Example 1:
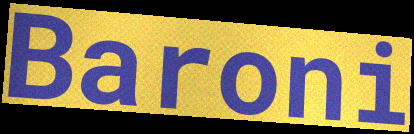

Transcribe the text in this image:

Baroni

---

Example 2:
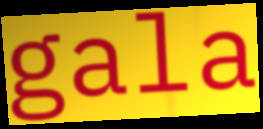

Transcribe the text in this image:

gala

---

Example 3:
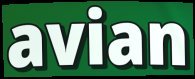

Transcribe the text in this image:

avian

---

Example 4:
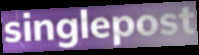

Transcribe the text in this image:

singlepost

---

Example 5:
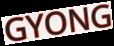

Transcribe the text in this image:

GYONG